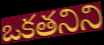
ఒకతనిని